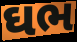
ઘભ